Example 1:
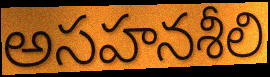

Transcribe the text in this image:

అసహనశీలి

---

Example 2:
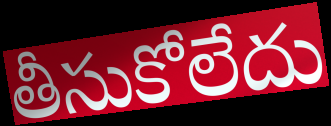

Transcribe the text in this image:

తీసుకోలేదు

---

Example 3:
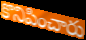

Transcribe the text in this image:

కొనిపించారు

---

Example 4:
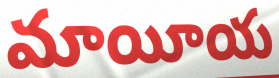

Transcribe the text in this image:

మాయీయ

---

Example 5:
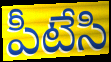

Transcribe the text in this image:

పీటేసి